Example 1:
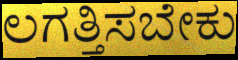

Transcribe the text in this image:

ಲಗತ್ತಿಸಬೇಕು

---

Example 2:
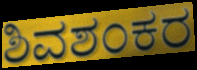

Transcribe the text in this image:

ಶಿವಶಂಕರ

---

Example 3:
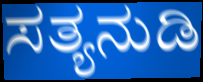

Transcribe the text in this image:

ಸತ್ಯನುಡಿ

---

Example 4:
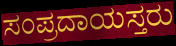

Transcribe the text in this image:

ಸಂಪ್ರದಾಯಸ್ತರು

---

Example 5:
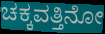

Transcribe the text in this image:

ಚಕ್ಕವತ್ತಿನೋ